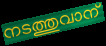
നടത്തുവാന്